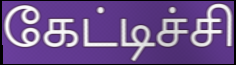
கேட்டிச்சி